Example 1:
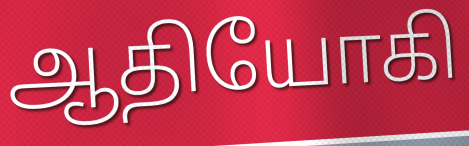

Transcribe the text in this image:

ஆதியோகி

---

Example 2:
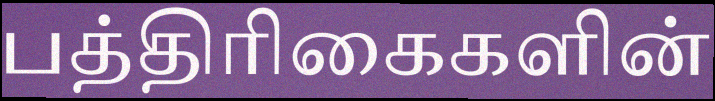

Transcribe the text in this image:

பத்திரிகைகளின்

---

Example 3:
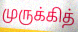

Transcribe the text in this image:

முருக்கித்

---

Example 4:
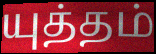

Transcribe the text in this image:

யுத்தம்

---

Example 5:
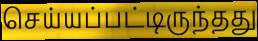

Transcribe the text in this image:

செய்யப்பட்டிருந்தது